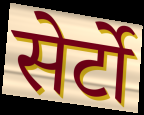
सेर्टो